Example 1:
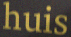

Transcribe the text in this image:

huis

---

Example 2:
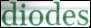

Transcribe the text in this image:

diodes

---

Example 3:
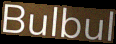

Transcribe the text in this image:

Bulbul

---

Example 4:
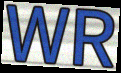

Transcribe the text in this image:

WR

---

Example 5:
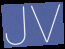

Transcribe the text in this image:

JV